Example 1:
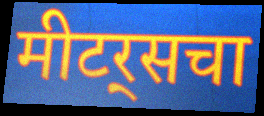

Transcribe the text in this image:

मीटर्सचा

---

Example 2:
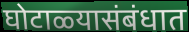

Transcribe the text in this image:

घोटाळ्यासंबंधात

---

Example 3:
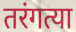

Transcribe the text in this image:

तरंगत्या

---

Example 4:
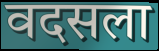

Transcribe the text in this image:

वदसला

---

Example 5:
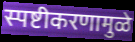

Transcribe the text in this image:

स्पष्टीकरणामुळे